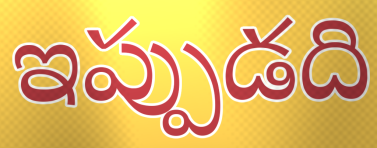
ఇప్పుడది